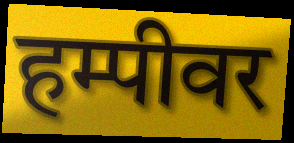
हम्पीवर